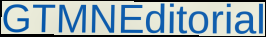
GTMNEditorial